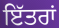
ਇੱਤਰਾਂ